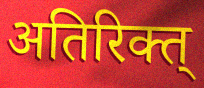
अतिरिक्त्